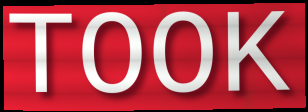
TOOK